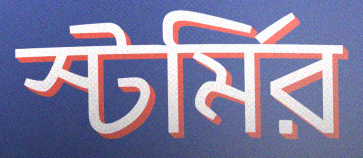
স্টর্মির